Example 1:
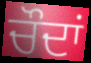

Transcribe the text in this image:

ਚੌਦਾਂ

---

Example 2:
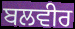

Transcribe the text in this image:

ਬਲਵੀਰ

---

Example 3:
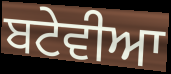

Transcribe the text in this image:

ਬਟੇਵੀਆ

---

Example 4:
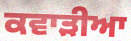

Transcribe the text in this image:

ਕਵਾੜੀਆ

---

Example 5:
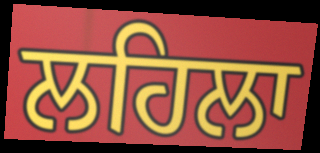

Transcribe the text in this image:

ਲਹਿਲਾ